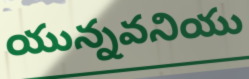
యున్నవనియు